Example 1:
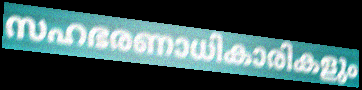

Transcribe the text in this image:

സഹഭരണാധികാരികളും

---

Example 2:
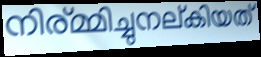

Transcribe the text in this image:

നിര്മ്മിച്ചുനല്കിയത്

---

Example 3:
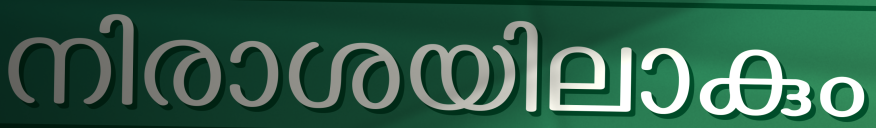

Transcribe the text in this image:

നിരാശയിലാകും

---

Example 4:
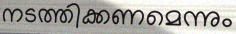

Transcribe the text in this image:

നടത്തിക്കണമെന്നും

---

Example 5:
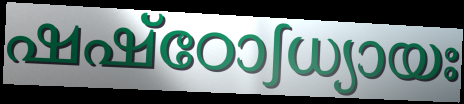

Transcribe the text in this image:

ഷഷ്ഠോഽധ്യായഃ